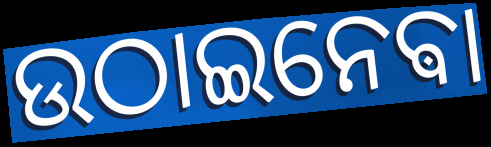
ଉଠାଇନେଵା